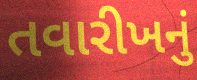
તવારીખનું